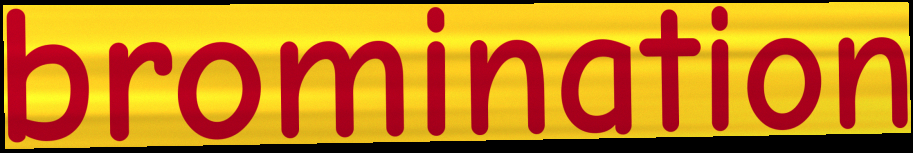
bromination